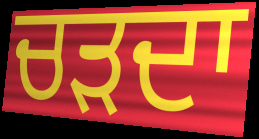
ਚੜਦਾ